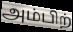
அம்பிற்